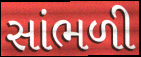
સાંભળી